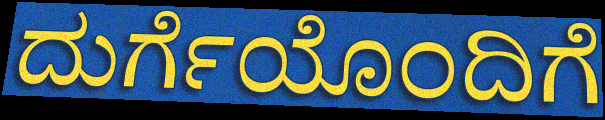
ದುರ್ಗೆಯೊಂದಿಗೆ